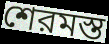
শেরমস্ত